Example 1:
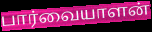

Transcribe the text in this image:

பார்வையாளன்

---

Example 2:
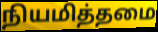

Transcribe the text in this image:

நியமித்தமை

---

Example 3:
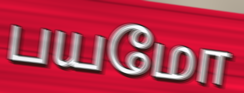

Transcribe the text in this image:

பயமோ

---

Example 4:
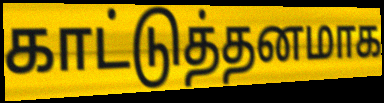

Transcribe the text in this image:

காட்டுத்தனமாக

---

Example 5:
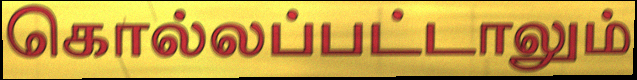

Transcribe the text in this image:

கொல்லப்பட்டாலும்